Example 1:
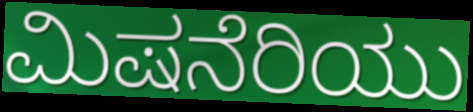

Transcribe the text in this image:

ಮಿಷನೆರಿಯು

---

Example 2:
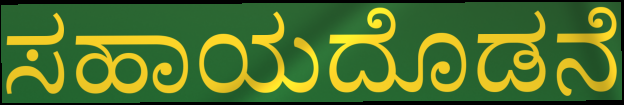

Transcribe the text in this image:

ಸಹಾಯದೊಡನೆ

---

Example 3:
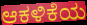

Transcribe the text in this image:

ಆಕಳಿಕೆಯ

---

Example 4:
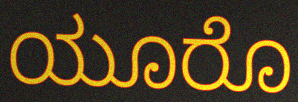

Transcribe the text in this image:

ಯೂರೊ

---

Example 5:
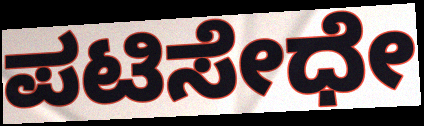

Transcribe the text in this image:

ಪಟಿಸೇಧೇ